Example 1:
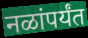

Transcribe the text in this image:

नळांपर्यंत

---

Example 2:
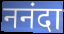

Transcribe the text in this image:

ननंदा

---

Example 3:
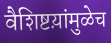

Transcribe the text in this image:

वैशिष्टय़ांमुळेच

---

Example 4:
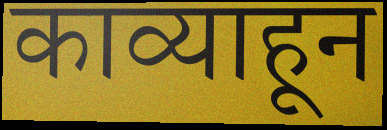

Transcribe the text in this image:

काव्याहून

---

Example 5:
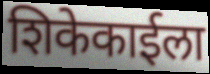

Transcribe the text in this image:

शिकेकाईला